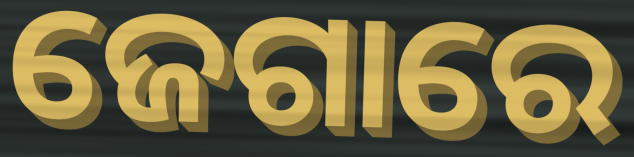
ଜେଗାରେ